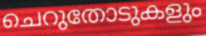
ചെറുതോടുകളും